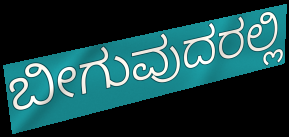
ಬೀಗುವುದರಲ್ಲಿ